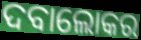
ଦବାଲୋକର